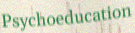
Psychoeducation